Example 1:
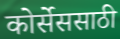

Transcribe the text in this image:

कोर्सेससाठी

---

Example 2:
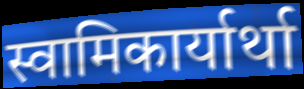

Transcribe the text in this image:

स्वामिकार्यार्था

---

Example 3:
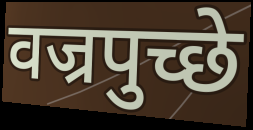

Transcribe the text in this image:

वज्रपुच्छे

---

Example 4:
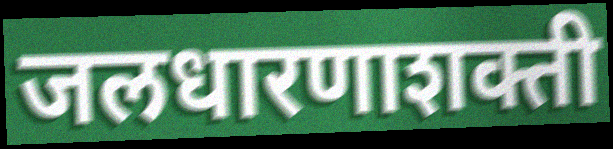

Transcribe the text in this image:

जलधारणाशक्ती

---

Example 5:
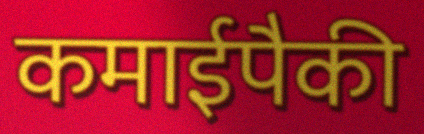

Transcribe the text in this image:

कमाईपैकी